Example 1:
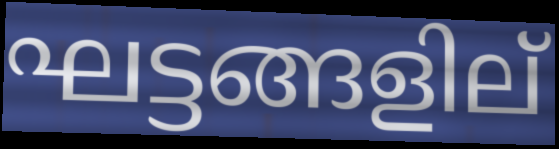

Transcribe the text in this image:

ഘട്ടങ്ങളില്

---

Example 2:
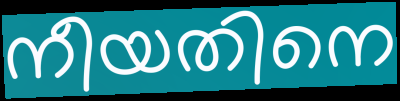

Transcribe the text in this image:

നീയതിനെ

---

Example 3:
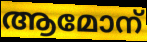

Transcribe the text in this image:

ആമോന്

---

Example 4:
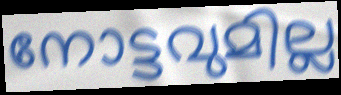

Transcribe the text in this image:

നോട്ടവുമില്ല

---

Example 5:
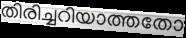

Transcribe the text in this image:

തിരിച്ചറിയാത്തതോ